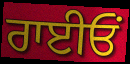
ਰਾਈਓਂ